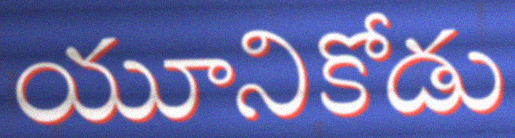
యూనికోడు